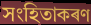
সংহিতাকৰণ